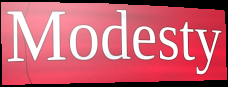
Modesty